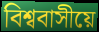
বিশ্ববাসীয়ে